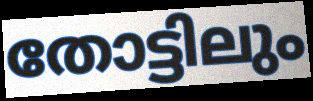
തോട്ടിലും